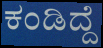
ಕಂಡಿದ್ದೆ